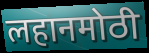
लहानमोठी